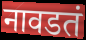
नावडतं